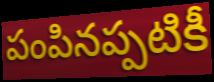
పంపినప్పటికీ